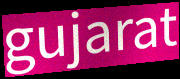
gujarat